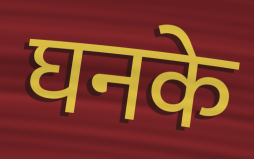
घनके